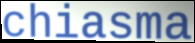
chiasma